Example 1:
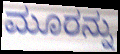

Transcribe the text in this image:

ಮೂರನ್ನು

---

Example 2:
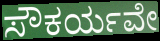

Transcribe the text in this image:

ಸೌಕರ್ಯವೇ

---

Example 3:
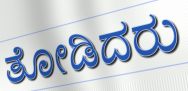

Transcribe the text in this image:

ತೋಡಿದರು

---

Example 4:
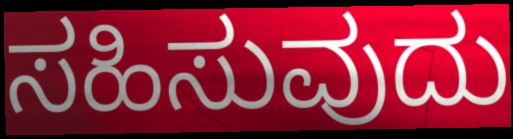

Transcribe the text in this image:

ಸಹಿಸುವುದು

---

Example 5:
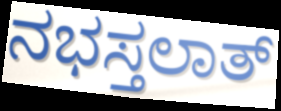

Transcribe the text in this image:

ನಭಸ್ತಲಾತ್